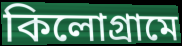
কিলোগ্রামে